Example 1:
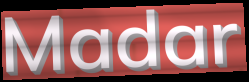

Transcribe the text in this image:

Madar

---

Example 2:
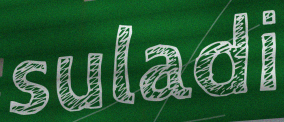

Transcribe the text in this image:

suladi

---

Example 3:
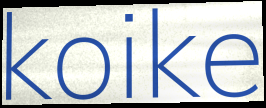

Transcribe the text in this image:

koike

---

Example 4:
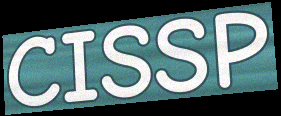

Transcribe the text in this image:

CISSP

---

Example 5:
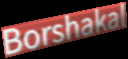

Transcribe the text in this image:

Borshakal